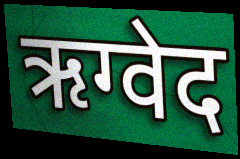
ॠग्वेद